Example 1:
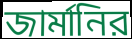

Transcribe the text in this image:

জার্মানির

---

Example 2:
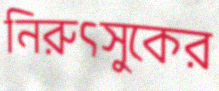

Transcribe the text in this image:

নিরুৎসুকের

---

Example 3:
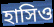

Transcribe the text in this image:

হাসিও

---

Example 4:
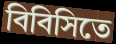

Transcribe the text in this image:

বিবিসিতে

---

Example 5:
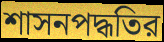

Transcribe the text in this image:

শাসনপদ্ধতির